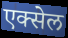
एक्सेल